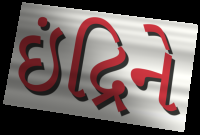
ઇંદ્રિને